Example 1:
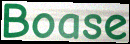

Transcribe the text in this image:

Boase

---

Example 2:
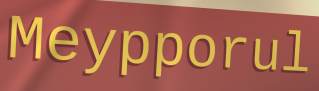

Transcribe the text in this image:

Meypporul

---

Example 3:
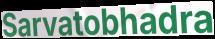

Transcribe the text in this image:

Sarvatobhadra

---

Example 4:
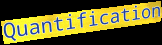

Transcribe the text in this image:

Quantification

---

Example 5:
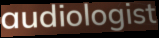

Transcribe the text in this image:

audiologist